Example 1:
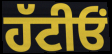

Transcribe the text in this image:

ਹੱਟੀਓਂ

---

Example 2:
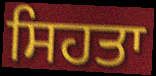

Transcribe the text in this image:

ਸਿਹਤਾ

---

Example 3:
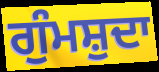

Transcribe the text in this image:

ਗੁੰਮਸ਼ੁਦਾ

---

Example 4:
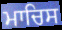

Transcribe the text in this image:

ਮਾਚਿਸ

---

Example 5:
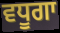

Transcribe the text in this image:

ਵਧੂਗਾ